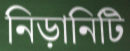
নিড়ানিটি